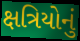
ક્ષત્રિયોનું